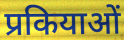
प्रकियाओं